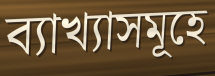
ব্যাখ্যাসমূহে